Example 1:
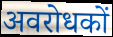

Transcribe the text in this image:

अवरोधकों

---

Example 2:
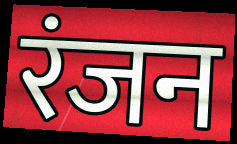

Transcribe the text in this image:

रंजन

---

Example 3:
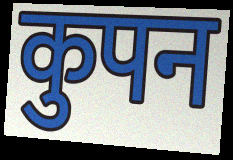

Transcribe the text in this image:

कुपन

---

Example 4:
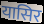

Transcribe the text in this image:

यासिर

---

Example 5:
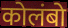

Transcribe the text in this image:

कोलंबो